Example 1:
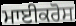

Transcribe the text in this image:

ਮਾਈਕਰੋਸ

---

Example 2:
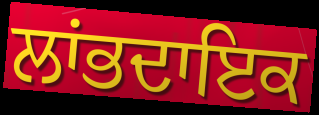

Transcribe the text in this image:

ਲਾਂਭਦਾਇਕ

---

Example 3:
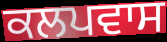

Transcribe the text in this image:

ਕਲਪਵਾਸ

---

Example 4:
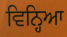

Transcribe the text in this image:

ਵਿਨ੍ਹਿਆ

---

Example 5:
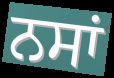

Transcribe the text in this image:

ਨਸਾਂ